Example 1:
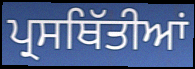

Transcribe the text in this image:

ਪ੍ਰਸਥਿੱਤੀਆਂ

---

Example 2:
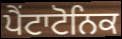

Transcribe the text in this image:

ਪੈਂਟਾਟੋਨਿਕ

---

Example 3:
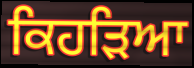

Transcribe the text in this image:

ਕਿਹੜਿਆ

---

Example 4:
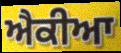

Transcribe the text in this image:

ਐਕੀਆ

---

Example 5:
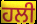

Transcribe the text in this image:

ਹਲੀ